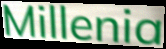
Millenia